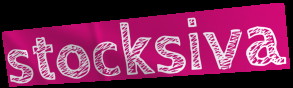
stocksiva